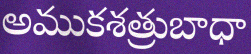
అముకశత్రుబాధా